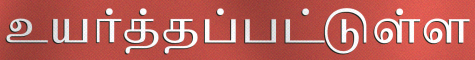
உயர்த்தப்பட்டுள்ள